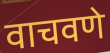
वाचवणे